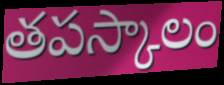
తపస్కాలం